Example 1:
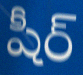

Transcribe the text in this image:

షీర్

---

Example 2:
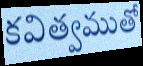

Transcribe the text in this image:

కవిత్వముతో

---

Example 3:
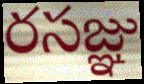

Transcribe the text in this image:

రసజ్ఞు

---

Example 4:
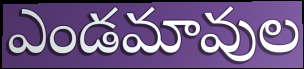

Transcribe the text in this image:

ఎండమావుల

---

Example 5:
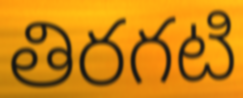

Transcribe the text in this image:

తిరగటి